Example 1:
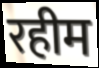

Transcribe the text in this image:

रहीम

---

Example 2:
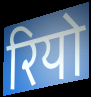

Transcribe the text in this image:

रियो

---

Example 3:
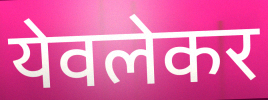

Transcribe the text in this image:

येवलेकर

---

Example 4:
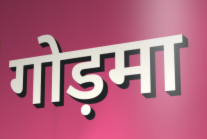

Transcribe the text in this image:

गोड़मा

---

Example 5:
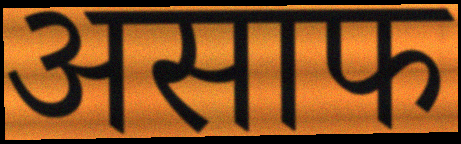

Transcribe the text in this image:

असाफ